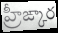
హ్రీఙ్కార